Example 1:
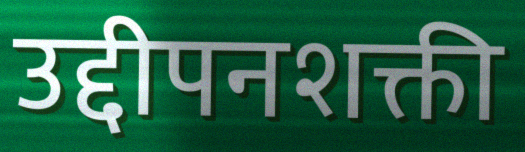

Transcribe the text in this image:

उद्दीपनशक्ती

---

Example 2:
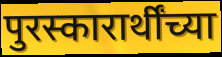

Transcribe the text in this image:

पुरस्कारार्थींच्या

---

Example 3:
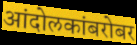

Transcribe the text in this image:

आंदोलकांबरोबर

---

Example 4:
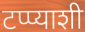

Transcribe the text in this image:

टप्प्याशी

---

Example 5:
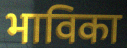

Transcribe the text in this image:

भाविका